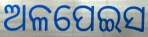
ଅଳପେଇସ